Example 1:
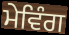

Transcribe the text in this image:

ਮੇਵਿੰਗ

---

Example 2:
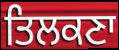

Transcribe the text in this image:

ਤਿਲਕਣਾ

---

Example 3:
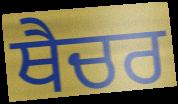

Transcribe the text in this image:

ਥੈਚਰ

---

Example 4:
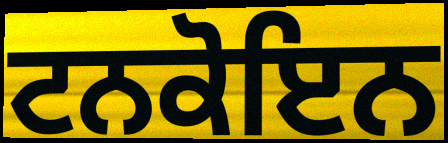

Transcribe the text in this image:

ਟਨਕੋਇਨ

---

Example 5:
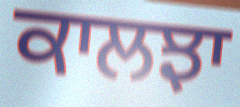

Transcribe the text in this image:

ਕਾਲਝਾ